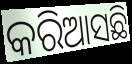
କରିଆସଛି